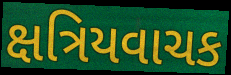
ક્ષત્રિયવાચક